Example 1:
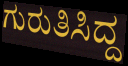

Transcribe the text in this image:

ಗುರುತಿಸಿದ್ದ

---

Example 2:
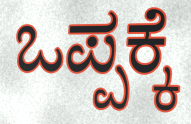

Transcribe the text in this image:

ಒಪ್ಪಕ್ಕೆ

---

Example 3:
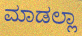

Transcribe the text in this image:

ಮಾಡಲ್ಲಾ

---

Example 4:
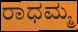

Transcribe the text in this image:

ರಾಧಮ್ಮ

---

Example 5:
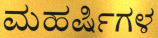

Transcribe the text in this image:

ಮಹರ್ಷಿಗಳ